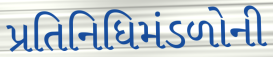
પ્રતિનિધિમંડળોની